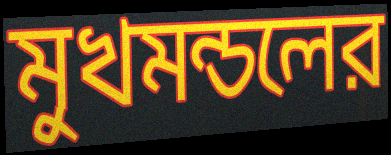
মুখমন্ডলের